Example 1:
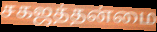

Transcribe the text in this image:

சகஜத்தன்மை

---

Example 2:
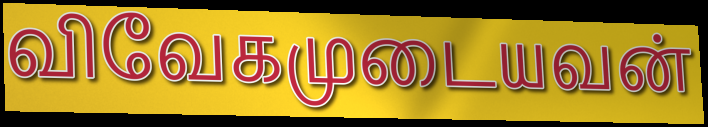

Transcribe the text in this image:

விவேகமுடையவன்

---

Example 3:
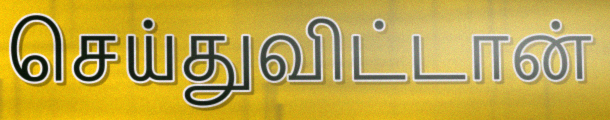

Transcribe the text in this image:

செய்துவிட்டான்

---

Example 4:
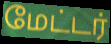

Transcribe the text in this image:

மேட்டர்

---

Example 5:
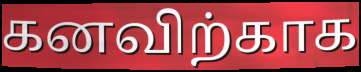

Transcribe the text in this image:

கனவிற்காக